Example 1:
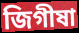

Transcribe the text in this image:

জিগীষা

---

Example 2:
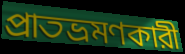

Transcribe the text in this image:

প্রাতভ্রমণকারী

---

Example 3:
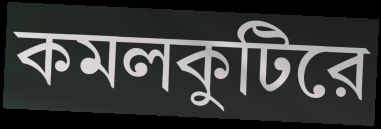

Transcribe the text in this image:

কমলকুটিরে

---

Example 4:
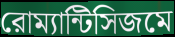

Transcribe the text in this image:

রোম্যান্টিসিজমে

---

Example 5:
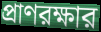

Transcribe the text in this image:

প্রাণরক্ষার